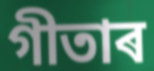
গীতাৰ